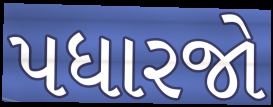
પધારજો